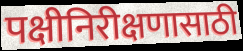
पक्षीनिरीक्षणासाठी